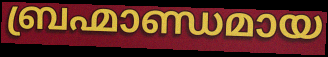
ബ്രഹ്മാണ്ഡമായ